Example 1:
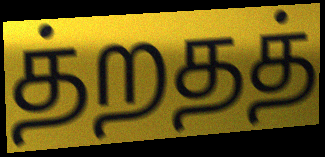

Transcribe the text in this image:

த்றதத்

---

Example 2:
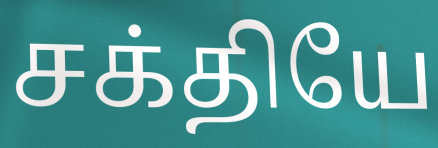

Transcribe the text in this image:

சக்தியே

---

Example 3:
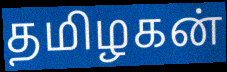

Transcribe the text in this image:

தமிழகன்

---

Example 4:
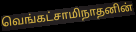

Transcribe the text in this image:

வெங்கட்சாமிநாதனின்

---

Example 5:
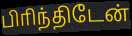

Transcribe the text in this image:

பிரிந்திடேன்